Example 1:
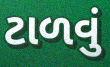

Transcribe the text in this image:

ટાળવું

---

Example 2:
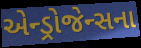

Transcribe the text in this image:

એન્ડ્રોજેન્સના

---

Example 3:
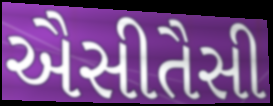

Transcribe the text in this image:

ઐસીતૈસી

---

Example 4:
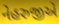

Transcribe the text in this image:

નેહરુજીએ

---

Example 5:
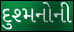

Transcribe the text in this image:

દુશ્મનોની